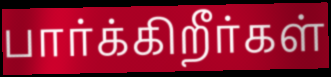
பார்க்கிறீர்கள்